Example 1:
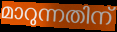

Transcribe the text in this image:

മാറുന്നതിന്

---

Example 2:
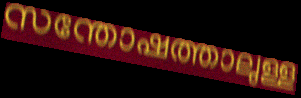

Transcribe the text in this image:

സന്തോഷത്താലുള്ള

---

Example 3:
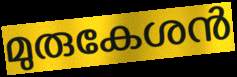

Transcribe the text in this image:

മുരുകേശൻ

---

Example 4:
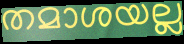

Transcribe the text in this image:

തമാശയല്ല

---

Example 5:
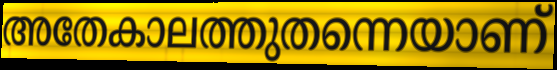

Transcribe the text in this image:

അതേകാലത്തുതന്നെയാണ്